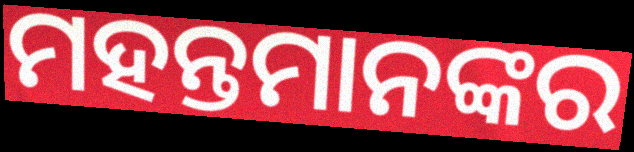
ମହନ୍ତମାନଙ୍କର